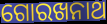
ଗୋରଖନାଥ